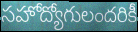
సహోద్యోగులందరికీ